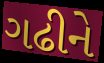
ગઢીને